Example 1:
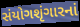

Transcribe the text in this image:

સંયોગશૃંગારનાં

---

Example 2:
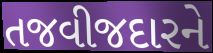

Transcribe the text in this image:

તજવીજદારને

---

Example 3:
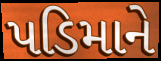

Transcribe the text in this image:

પડિમાને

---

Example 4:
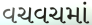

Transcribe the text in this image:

વચવચમાં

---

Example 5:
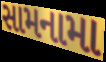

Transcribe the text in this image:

સામનામા